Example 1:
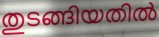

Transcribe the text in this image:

തുടങ്ങിയതിൽ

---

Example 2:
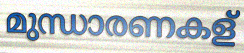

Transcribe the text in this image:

മുന്ധാരണകള്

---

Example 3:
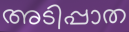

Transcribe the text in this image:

അടിപ്പാത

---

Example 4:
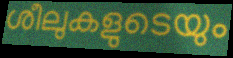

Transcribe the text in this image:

ശീലുകളുടെയും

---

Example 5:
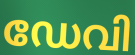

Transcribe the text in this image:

ഡേവി